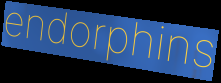
endorphins